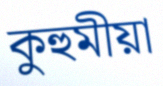
কুহুমীয়া